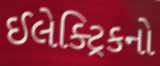
ઈલેક્ટ્રિકનો